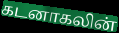
கடனாகலின்